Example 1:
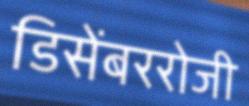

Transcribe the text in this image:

डिसेंबररोजी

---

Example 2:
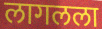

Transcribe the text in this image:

लागलला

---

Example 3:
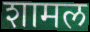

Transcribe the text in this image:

शामल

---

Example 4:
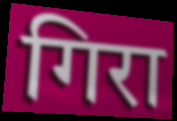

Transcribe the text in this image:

गिरा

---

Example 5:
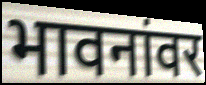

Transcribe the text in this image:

भावनांवर